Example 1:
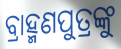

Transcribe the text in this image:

ବ୍ରାହ୍ମଣପୁତ୍ରଙ୍କୁ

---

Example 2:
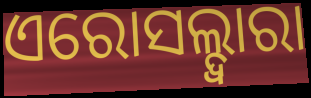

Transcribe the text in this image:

ଏରୋସଲ୍ଦ୍ୱାରା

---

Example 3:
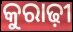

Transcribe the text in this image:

କୁରାଢ଼ୀ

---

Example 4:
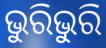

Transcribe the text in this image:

ଭୁରିଭୁରି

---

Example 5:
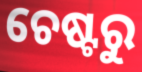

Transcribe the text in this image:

ଚେଷ୍ଟରୁ